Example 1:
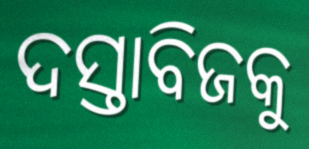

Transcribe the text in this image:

ଦସ୍ତାବିଜକୁ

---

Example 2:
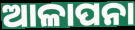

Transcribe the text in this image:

ଆଳାପନା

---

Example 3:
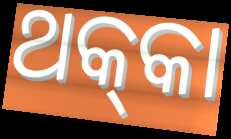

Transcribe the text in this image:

ଥକ୍‍କା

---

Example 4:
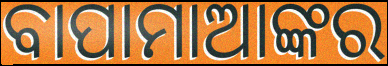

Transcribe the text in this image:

ବାପାମାଆଙ୍କର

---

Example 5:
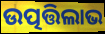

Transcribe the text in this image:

ଉତ୍ପତ୍ତିଲାଭ